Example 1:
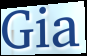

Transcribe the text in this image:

Gia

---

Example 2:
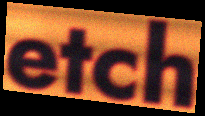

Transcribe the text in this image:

etch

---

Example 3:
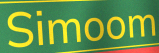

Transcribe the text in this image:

Simoom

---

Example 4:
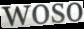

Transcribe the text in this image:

woso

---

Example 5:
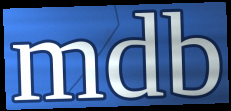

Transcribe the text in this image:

mdb